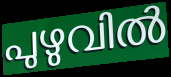
പുഴുവിൽ